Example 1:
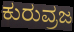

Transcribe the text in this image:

ಕುರುವ್ರಜ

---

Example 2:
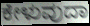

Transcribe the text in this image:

ಕೇಳುವುದಾ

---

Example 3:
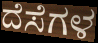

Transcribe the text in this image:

ದೆಸೆಗಳ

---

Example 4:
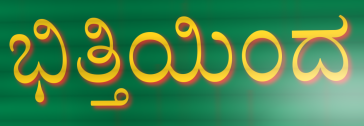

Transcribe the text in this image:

ಭಿತ್ತಿಯಿಂದ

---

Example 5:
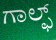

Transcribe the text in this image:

ಗಾಲ್ಫ್